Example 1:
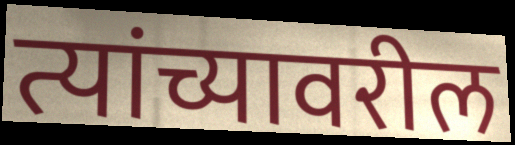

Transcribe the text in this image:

त्यांच्यावरील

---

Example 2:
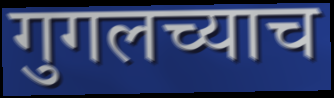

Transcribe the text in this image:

गुगलच्याच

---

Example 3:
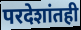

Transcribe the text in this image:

परदेशांतही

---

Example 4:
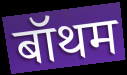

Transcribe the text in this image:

बॉथम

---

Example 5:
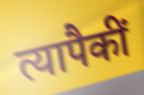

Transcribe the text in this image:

त्यापैकीं